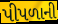
પીપળાની